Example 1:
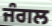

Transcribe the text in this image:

ਜੰਗਲ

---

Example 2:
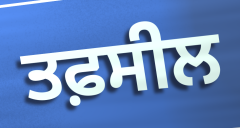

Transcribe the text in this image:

ਤਫ਼ਸੀਲ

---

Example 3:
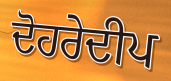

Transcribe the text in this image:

ਦੋਹਰੇਦੀਪ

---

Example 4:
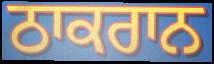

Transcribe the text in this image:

ਠਾਕਰਾਨ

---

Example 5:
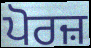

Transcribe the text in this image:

ਪੋਰਜ਼